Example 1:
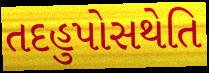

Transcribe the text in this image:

તદહુપોસથેતિ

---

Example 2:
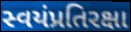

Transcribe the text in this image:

સ્વયંપ્રતિરક્ષા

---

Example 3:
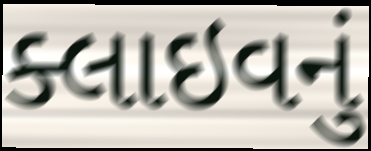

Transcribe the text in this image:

ક્લાઇવનું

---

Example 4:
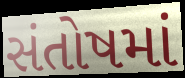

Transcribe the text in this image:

સંતોષમાં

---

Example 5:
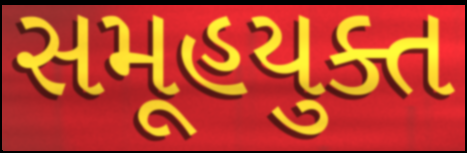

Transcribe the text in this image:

સમૂહયુક્ત